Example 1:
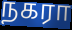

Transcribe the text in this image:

நகரா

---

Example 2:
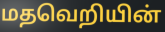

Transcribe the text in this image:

மதவெறியின்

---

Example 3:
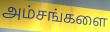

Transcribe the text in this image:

அம்சங்களை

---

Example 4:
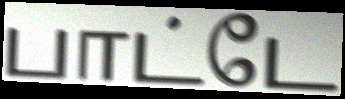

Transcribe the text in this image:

பாட்டே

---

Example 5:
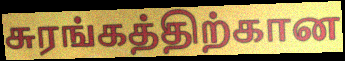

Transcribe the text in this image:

சுரங்கத்திற்கான